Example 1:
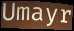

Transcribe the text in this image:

Umayr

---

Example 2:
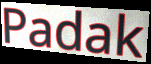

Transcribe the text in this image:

Padak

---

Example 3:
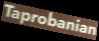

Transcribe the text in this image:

Taprobanian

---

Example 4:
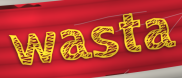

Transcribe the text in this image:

wasta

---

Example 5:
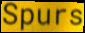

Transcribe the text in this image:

Spurs